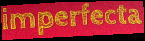
imperfecta